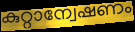
കുറ്റാന്വേഷണം